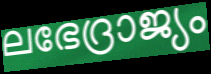
ലഭേദ്രാജ്യം